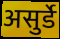
असुर्डे